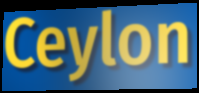
Ceylon